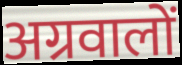
अग्रवालों